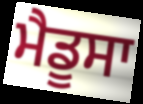
ਮੈਡੂਸਾ